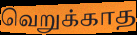
வெறுக்காத